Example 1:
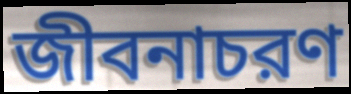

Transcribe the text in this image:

জীবনাচরণ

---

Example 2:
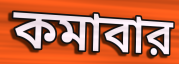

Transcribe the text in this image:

কমাবার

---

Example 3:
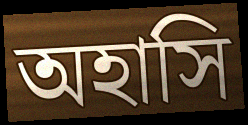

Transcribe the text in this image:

অহাসি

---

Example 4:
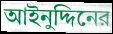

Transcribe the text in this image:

আইনুদ্দিনের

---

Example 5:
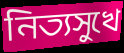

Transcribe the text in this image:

নিত্যসুখে